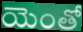
యెంతో